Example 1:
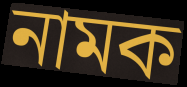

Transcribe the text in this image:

নামক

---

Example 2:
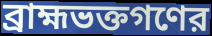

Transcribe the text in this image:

ব্রাহ্মভক্তগণের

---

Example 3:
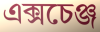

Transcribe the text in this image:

এক্সচেঞ্জ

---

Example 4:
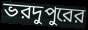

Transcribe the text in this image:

ভরদুপুরের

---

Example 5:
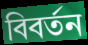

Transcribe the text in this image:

বিবর্তন